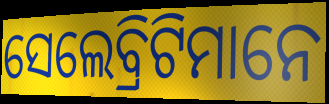
ସେଲେବ୍ରିଟିମାନେ